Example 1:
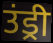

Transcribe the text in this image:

उंड्री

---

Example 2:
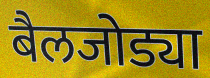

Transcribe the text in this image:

बैलजोड्या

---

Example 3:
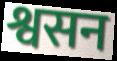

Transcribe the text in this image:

श्वसन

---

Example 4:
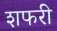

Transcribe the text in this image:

शफरी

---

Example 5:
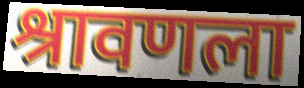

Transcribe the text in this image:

श्रावणला